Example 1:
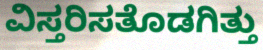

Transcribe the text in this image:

ವಿಸ್ತರಿಸತೊಡಗಿತ್ತು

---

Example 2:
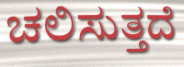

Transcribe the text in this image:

ಚಲಿಸುತ್ತದೆ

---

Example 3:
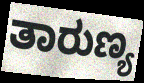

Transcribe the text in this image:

ತಾರುಣ್ಯ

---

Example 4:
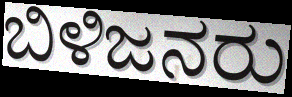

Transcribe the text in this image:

ಬಿಳಿಜನರು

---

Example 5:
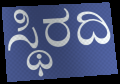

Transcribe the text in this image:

ಸ್ಥಿರದಿ